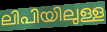
ലിപിയിലുള്ള